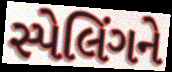
સ્પેલિંગને